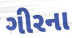
ગીરના